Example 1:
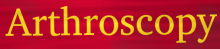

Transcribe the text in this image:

Arthroscopy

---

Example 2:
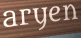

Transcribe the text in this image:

aryen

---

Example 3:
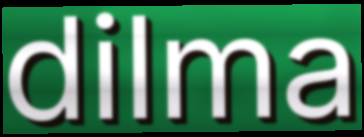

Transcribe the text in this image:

dilma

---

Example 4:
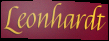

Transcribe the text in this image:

Leonhardt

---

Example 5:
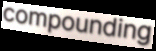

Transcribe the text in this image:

compounding